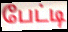
பேட்டி